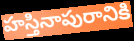
హస్తినాపురానికి